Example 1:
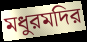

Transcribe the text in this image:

মধুরমদির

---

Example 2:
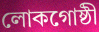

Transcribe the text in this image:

লোকগোষ্ঠী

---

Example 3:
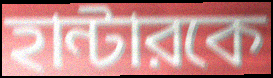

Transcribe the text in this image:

হান্টারকে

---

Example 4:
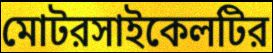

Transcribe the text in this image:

মোটরসাইকেলটির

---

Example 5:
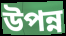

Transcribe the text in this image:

উপন্ন